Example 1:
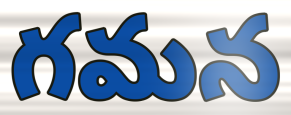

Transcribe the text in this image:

గమన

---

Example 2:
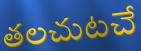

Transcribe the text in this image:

తలచుటచే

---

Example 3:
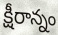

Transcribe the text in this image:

క్షీరాన్నం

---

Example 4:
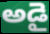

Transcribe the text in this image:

అడై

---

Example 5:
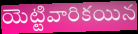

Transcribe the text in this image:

యెట్టివారికయిన